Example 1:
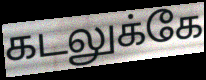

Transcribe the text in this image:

கடலுக்கே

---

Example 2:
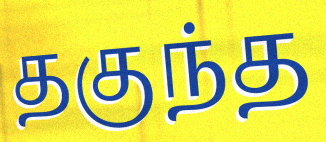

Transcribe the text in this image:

தகுந்த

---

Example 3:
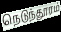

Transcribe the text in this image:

நெடுந்தூரம்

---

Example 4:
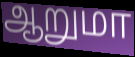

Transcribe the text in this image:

ஆறுமா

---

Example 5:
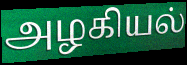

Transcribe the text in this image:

அழகியல்